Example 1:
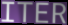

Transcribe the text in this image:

ITER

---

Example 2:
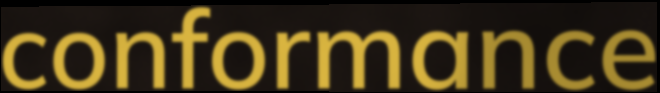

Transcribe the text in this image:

conformance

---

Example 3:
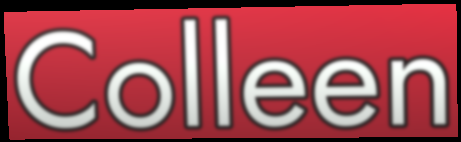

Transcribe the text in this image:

Colleen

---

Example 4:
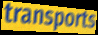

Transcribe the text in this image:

transports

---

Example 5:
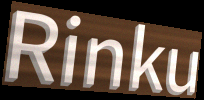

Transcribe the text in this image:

Rinku